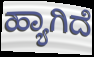
ಹ್ಯಾಗಿದೆ